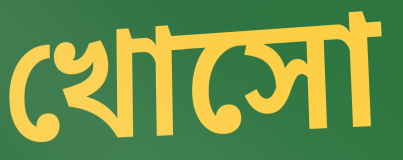
খোসো